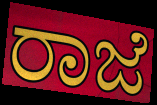
ರಾಜೆ